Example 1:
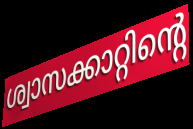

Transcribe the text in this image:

ശ്വാസക്കാറ്റിന്റെ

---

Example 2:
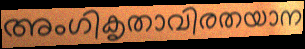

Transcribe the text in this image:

അംഗികൃതാവിരതയാന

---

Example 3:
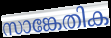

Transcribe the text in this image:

സാങ്കേതിക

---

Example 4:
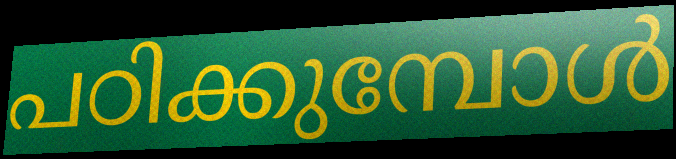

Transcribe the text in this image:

പഠിക്കുമ്പോൾ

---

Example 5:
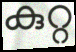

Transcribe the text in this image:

കുറ്റ